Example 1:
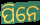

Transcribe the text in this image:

ପିନେ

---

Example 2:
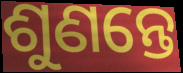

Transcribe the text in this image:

ଶୁଣନ୍ତେ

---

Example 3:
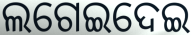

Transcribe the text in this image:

ଲଗେଇଦେଇ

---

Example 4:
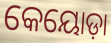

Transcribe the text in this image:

କେୟୋଡ଼ା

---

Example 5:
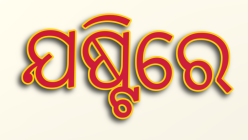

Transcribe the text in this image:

ଯଷ୍ଟିରେ